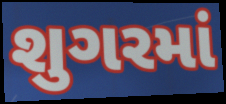
શુગરમાં